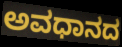
ಅವಧಾನದ